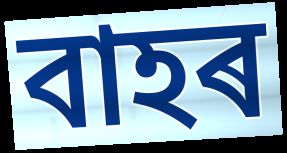
বাহৰ